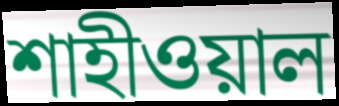
শাহীওয়াল